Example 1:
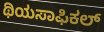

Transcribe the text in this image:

ಥಿಯಸಾಫಿಕಲ್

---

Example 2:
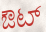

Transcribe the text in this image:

ಔಟ್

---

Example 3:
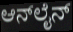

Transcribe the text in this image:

ಆನ್‍ಲೈನ್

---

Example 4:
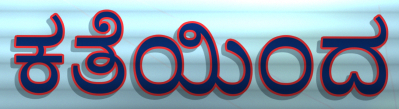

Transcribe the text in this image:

ಕತೆಯಿಂದ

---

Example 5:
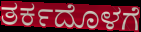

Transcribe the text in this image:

ತರ್ಕದೊಳಗೆ